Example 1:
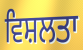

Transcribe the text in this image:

ਵਿਸ਼ਲਤਾ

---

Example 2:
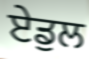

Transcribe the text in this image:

ਏਡੁਲ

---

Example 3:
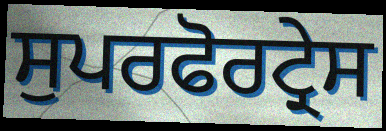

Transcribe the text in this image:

ਸੁਪਰਫੋਰਟ੍ਰੇਸ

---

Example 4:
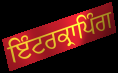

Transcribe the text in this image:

ਇੰਟਰਕ੍ਰਾਪਿੰਗ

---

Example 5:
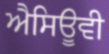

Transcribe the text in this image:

ਐਸਿਊਵੀ